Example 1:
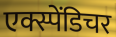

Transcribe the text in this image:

एक्स्पेंडिचर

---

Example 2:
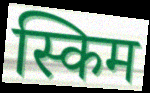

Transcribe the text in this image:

स्किम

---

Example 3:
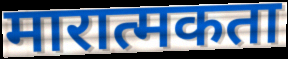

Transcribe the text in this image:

मारात्मकता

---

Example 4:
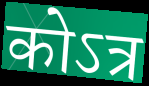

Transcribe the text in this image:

कोऽत्र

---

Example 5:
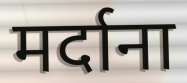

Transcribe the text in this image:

मर्दाना